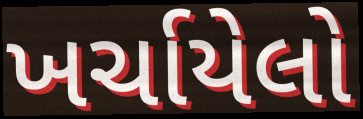
ખર્ચાયેલો